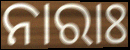
ନାରାଃ